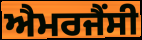
ਐਮਰਜੈਂਸੀ